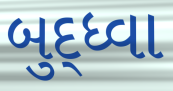
બુદ્ધ્વા